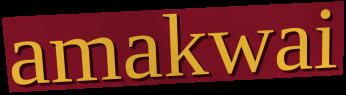
amakwai